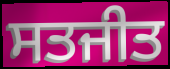
ਸਤਜੀਤ